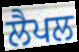
ਲੈਪਲ